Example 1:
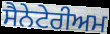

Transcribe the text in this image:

ਸੈਨੇਟੇਰੀਅਮ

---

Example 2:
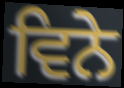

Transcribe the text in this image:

ਵਿਨੇ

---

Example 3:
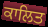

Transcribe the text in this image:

ਕਾਲਿਤ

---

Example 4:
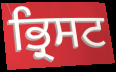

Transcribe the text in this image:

ਭ੍ਰਿਸਟ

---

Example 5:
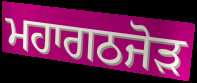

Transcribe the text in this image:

ਮਹਾਗਠਜੋੜ